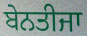
ਬੇਨਤੀਜਾ